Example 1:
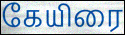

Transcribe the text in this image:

கேயிரை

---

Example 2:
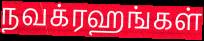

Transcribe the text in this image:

நவக்ரஹங்கள்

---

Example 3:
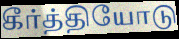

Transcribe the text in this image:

கீர்த்தியோடு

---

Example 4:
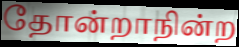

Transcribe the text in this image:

தோன்றாநின்ற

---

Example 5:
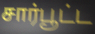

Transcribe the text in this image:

சார்பூட்ட